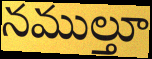
నముల్తూ